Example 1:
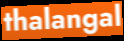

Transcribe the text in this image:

thalangal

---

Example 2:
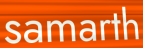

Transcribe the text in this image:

samarth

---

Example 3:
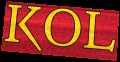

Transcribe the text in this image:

KOL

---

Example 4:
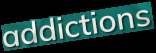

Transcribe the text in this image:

addictions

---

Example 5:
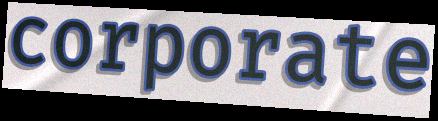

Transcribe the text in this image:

corporate